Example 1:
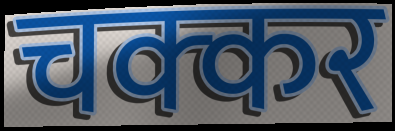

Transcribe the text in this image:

चक्‍कर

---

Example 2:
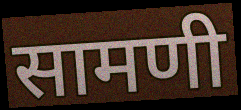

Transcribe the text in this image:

सामणी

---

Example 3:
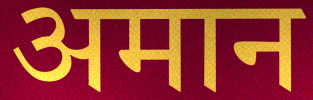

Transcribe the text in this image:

अमान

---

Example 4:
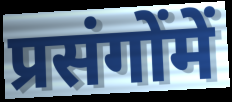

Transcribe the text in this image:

प्रसंगोंमें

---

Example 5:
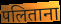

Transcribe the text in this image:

पलिताना